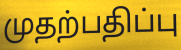
முதற்பதிப்பு